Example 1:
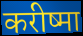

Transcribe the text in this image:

करीष्मा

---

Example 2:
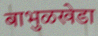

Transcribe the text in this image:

बाभुळखेडा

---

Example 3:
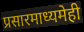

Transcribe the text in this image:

प्रसारमाध्यमेही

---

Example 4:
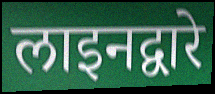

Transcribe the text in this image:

लाइनद्वारे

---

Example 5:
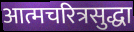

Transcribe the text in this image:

आत्मचरित्रसुद्धा